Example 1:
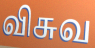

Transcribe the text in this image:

விசுவ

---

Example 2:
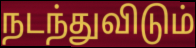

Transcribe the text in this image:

நடந்துவிடும்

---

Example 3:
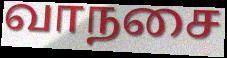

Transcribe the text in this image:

வாநசை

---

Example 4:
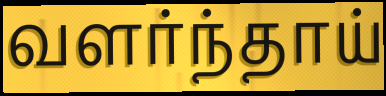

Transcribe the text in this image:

வளர்ந்தாய்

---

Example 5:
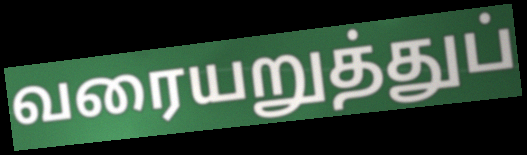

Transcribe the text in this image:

வரையறுத்துப்